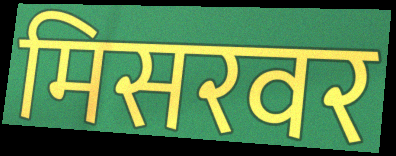
मिसरवर